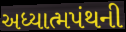
અધ્યાત્મપંથની